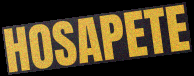
HOSAPETE